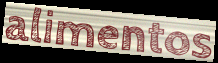
alimentos